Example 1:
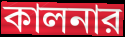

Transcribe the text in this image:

কালনার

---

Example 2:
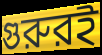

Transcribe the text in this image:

গুরুরই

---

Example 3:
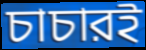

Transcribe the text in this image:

চাচারই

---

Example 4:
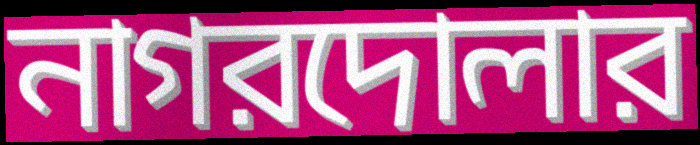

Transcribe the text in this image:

নাগরদোলার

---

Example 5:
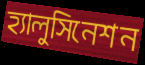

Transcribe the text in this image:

হ্যালুসিনেশন